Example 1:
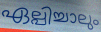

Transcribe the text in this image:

ഏല്പിച്ചാലും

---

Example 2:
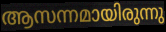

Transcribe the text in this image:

ആസന്നമായിരുന്നു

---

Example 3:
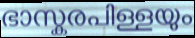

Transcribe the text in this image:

ഭാസ്കരപിള്ളയും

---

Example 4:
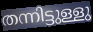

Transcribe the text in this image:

തന്നിട്ടുള്ളു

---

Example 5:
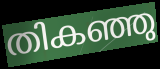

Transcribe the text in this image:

തികഞ്ഞു